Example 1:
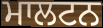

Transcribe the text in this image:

ਮਾਲਟਨ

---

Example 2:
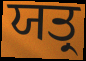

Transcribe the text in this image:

ਯਤ੍ਰ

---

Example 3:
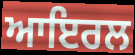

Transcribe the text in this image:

ਆਇਰਲ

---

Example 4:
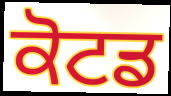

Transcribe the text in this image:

ਕੋਟਡ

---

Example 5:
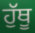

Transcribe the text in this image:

ਹੁੱਥੂ